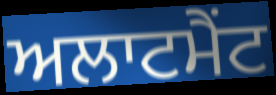
ਅਲਾਟਮੈਂਟ